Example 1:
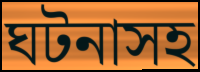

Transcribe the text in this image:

ঘটনাসহ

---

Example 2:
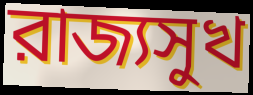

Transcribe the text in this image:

রাজ্যসুখ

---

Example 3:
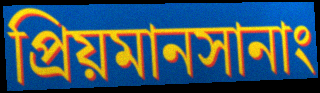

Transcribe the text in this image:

প্রিয়মানসানাং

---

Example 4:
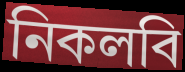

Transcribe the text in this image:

নিকলবি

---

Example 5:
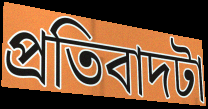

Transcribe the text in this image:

প্রতিবাদটা